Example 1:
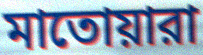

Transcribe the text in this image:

মাতোয়ারা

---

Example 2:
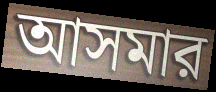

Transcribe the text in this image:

আসমার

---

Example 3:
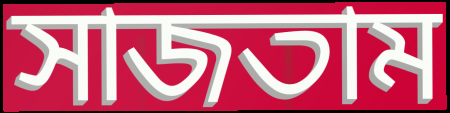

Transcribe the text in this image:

সাজতাম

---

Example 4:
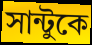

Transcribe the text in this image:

সান্টুকে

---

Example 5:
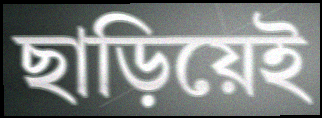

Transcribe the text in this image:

ছাড়িয়েই